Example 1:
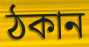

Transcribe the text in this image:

ঠকান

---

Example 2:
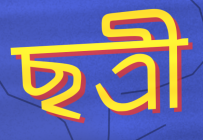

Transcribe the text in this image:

ছত্রী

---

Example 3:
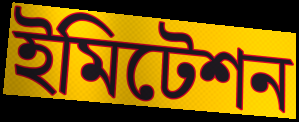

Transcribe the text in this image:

ইমিটেশন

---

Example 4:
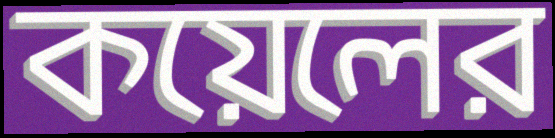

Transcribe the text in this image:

কয়েলের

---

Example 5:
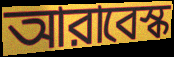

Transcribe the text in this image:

আরাবেস্ক